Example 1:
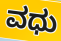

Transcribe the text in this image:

ವಧು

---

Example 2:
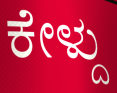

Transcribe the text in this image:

ಕೇಳ್ದು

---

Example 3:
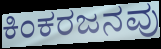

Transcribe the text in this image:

ಕಿಂಕರಜನವು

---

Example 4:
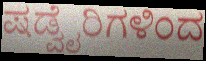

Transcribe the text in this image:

ಷಡ್ವೈರಿಗಳಿಂದ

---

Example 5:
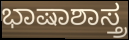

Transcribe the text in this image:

ಭಾಷಾಶಾಸ್ತ್ರ